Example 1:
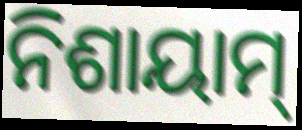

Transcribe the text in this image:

ନିଶାୟାମ୍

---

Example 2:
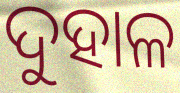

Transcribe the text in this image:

ଦୁହାଳ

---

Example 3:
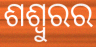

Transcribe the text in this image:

ଶଶ୍ୱୁରର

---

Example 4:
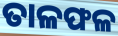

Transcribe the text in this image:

ତାଳଫଳ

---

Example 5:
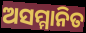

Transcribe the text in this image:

ଅସମ୍ମାନିତ